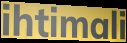
ihtimali